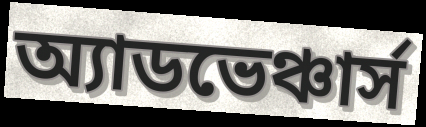
অ্যাডভেঞ্চার্স